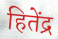
हितेंद्र